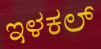
ಇಳಕಲ್